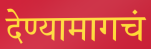
देण्यामागचं